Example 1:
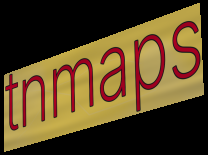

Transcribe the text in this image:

tnmaps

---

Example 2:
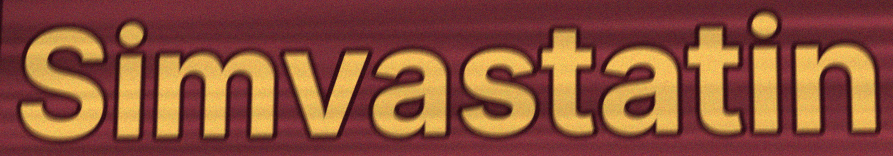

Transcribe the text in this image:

Simvastatin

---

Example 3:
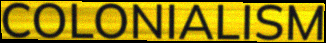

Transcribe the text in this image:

COLONIALISM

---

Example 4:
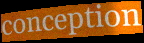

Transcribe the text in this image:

conception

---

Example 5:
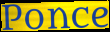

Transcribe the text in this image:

Ponce